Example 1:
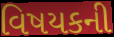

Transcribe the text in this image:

વિષયકની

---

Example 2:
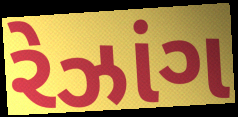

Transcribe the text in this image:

રેઝાંગ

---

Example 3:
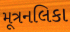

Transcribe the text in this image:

મૂત્રનલિકા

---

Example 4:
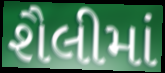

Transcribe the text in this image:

શૈલીમાં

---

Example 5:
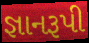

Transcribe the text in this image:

જ્ઞાનરૂપી